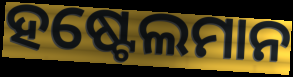
ହଷ୍ଟେଲମାନ